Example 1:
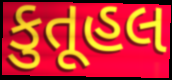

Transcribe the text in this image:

કુતૂહલ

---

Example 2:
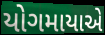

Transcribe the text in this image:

યોગમાયાએ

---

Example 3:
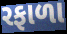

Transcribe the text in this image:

રફાળા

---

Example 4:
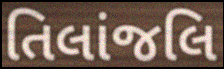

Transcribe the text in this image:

તિલાંજલિ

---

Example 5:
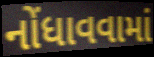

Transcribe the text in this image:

નોંધાવવામાં